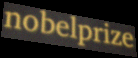
nobelprize